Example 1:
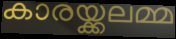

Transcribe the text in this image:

കാരയ്ക്കലമ്മ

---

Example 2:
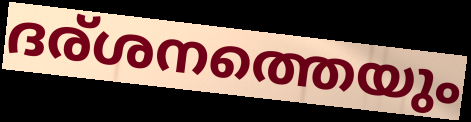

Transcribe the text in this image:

ദര്ശനത്തെയും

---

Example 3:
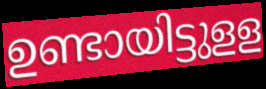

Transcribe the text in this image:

ഉണ്ടായിട്ടുളള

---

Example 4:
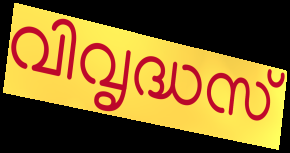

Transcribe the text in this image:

വിവൃദ്ധസ്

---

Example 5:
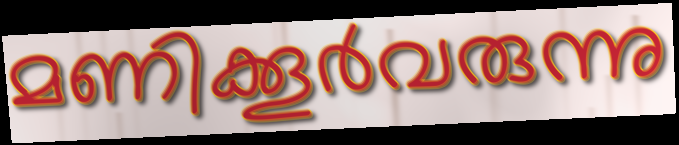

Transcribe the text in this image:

മണിക്കൂർവരുന്നു